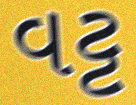
વટ્ટ